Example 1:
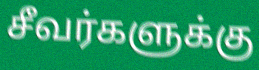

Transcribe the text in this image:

சீவர்களுக்கு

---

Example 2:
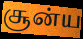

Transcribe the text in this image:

சூன்ய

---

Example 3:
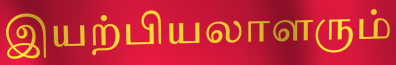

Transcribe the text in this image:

இயற்பியலாளரும்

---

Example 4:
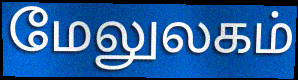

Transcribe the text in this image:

மேலுலகம்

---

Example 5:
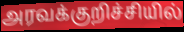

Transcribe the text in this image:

அரவக்குறிச்சியில்